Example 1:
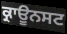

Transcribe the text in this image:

ਕ੍ਰਾਊਨਸਟ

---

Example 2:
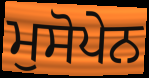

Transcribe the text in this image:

ਮੁਸੋਪੇਨ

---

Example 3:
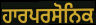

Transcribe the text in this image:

ਹਾਰਪਰਸੋਨਿਕ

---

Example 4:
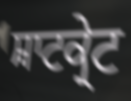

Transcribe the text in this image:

ਸ਼ਾਟਕ੍ਰੇਟ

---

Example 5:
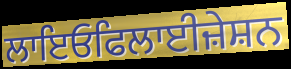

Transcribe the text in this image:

ਲਾਇਓਫਿਲਾਈਜ਼ੇਸ਼ਨ